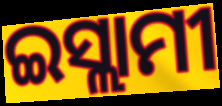
ଇସ୍ଲାମୀ